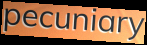
pecuniary